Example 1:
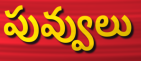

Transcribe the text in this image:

పువ్వులు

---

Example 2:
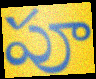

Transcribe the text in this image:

పూ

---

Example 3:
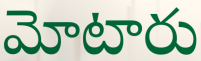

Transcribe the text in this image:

మోటారు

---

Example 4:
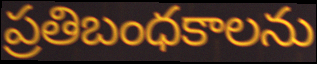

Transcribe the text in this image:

ప్రతిబంధకాలను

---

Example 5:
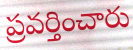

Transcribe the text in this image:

ప్రవర్తించారు